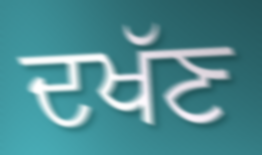
ਦਖੱਣ